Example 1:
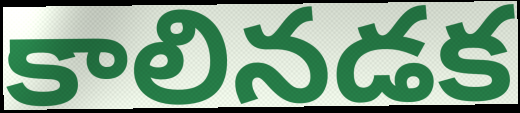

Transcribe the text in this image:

కాలినడక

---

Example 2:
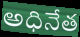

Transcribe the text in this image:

అధినేత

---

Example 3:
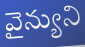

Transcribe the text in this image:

వైన్యుని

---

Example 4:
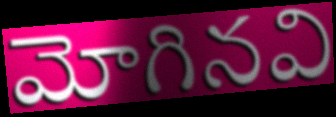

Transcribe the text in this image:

మోగినవి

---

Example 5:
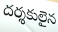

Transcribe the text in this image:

దర్శకులైన